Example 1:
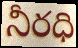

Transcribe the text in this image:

నీరధి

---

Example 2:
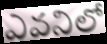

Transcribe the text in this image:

ఎవనిలో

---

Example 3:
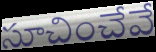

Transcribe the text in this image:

సూచించేవే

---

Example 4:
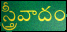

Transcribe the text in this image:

స్త్రీవాదం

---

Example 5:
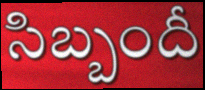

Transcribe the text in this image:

సిబ్బందీ